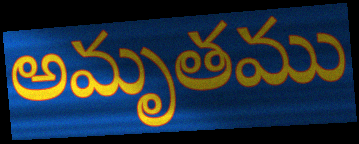
అమృతము